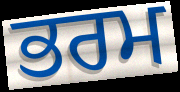
ਭਰਮ